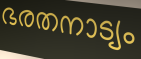
ഭരതനാട്യം